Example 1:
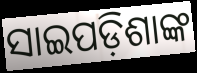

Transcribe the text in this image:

ସାଇପଡ଼ିଶାଙ୍କ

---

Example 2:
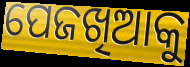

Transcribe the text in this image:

ପେଜଖିଆକୁ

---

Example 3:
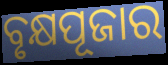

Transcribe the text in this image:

ବୃକ୍ଷପୂଜାର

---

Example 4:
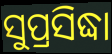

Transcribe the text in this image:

ସୁପ୍ରସିଦ୍ଧା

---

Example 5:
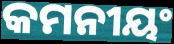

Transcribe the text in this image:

କମନୀୟଂ